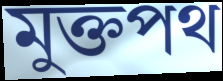
মুক্তপথ